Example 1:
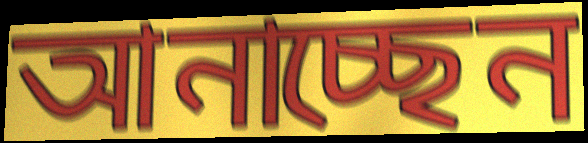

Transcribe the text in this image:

আনাচ্ছেন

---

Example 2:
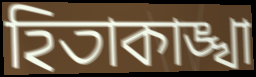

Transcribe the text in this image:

হিতাকাঙ্খা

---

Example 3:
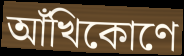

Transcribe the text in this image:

আঁখিকোণে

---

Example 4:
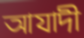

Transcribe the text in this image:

আযাদী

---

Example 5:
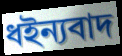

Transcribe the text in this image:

ধইন্যবাদ